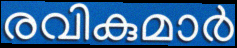
രവികുമാർ